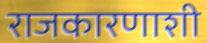
राजकारणाशी